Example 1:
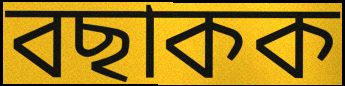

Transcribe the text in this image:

বছাকক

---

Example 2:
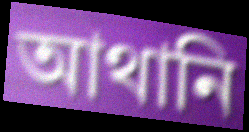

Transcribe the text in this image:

আথানি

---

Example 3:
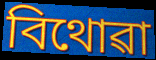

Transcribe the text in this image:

বিথোৱা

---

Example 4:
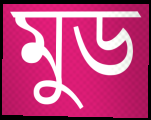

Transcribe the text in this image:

মুড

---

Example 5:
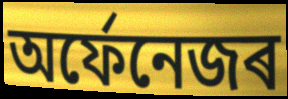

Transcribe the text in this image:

অৰ্ফেনেজৰ